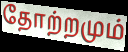
தோற்றமும்